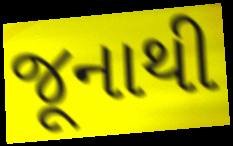
જૂનાથી